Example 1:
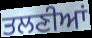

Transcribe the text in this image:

ਤਲਣੀਆਂ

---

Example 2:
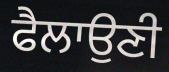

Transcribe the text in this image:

ਫੈਲਾਉਣੀ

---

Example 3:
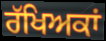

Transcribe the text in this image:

ਰੱਖਿਅਕਾਂ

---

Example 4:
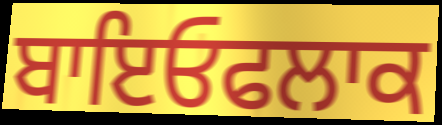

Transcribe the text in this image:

ਬਾਇਓਫਲਾਕ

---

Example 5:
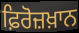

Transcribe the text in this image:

ਫ਼ਿਰੋਜ਼ਖ਼ਾਨ